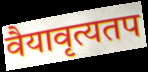
वैयावृत्यतप